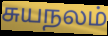
சுயநலம்